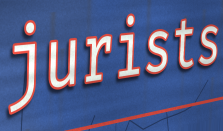
jurists